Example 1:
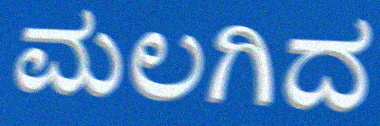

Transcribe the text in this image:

ಮಲಗಿದ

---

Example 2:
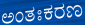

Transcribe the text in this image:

ಅಂತಃಕರಣ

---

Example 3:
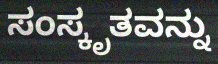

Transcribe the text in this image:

ಸಂಸ್ಕೃತವನ್ನು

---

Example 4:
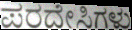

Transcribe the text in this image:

ಪರದೇಸಿಗಳು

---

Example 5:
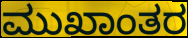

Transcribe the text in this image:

ಮುಖಾಂತರ